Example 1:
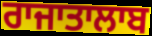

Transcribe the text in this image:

ਰਾਜਾਤਾਲਾਬ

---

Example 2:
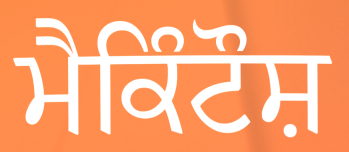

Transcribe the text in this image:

ਮੈਕਿੰਟੌਸ਼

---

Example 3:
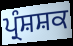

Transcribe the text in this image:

ਪ੍ਰੰਸ਼ਸ਼ਕ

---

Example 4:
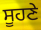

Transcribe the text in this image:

ਸੂਹਣੇ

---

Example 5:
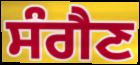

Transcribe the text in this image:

ਸੰਗੈਣ